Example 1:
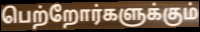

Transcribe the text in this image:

பெற்றோர்களுக்கும்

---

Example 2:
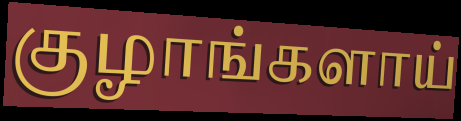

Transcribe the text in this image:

குழாங்களாய்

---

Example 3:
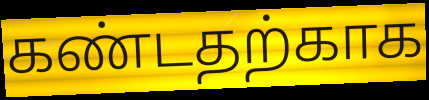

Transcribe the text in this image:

கண்டதற்காக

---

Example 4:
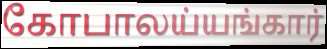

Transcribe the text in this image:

கோபாலய்யங்கார்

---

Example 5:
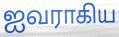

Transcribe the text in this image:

ஐவராகிய